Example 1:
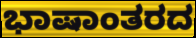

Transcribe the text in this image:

ಭಾಷಾಂತರದ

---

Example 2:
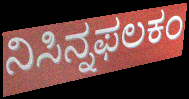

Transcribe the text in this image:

ನಿಸಿನ್ನಫಲಕಂ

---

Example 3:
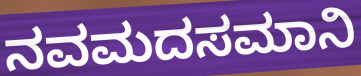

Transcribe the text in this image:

ನವಮದಸಮಾನಿ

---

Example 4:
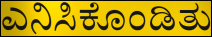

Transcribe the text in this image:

ಎನಿಸಿಕೊಂಡಿತು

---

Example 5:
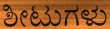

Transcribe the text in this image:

ಶೀಟುಗಳು